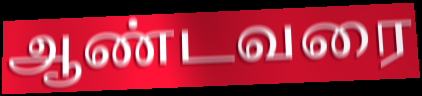
ஆண்டவரை